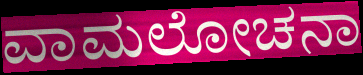
ವಾಮಲೋಚನಾ